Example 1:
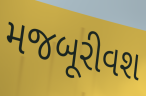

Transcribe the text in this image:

મજબૂરીવશ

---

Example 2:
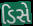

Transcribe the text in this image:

ડિસે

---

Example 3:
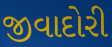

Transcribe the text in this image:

જીવાદોરી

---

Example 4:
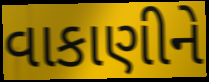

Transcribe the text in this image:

વાકાણીને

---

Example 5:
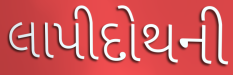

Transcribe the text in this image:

લાપીદોથની